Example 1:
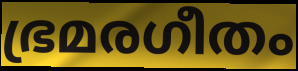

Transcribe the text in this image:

ഭ്രമരഗീതം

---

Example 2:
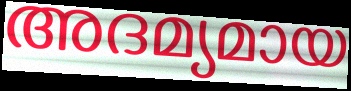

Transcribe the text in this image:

അദമ്യമായ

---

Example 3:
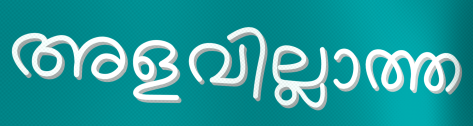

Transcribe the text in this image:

അളവില്ലാത്ത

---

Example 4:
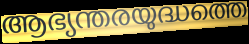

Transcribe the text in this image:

ആഭ്യന്തരയുദ്ധത്തെ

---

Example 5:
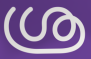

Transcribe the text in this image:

ശ്ര